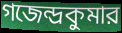
গজেন্দ্রকুমার